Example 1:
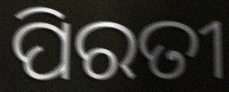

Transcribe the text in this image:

ପିରତୀ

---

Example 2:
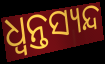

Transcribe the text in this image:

ଧ୍ଵନ୍ତସ୍ୟନ୍ଦ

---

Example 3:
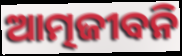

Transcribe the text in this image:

ଆତ୍ମଜୀବନି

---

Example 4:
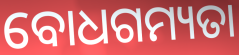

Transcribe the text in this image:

ବୋଧଗମ୍ୟତା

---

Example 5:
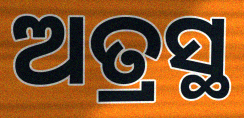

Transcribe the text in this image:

ଅତ୍ରସ୍ଥ